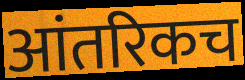
आंतरिकच